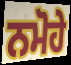
ਨਮੋਹੇ